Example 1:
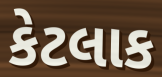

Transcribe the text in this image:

કેટલાક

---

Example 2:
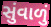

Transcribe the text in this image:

સુંવાળું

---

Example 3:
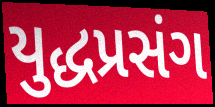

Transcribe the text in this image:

યુદ્ધપ્રસંગ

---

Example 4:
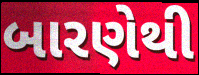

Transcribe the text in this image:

બારણેથી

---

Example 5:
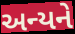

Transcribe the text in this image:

અન્યને